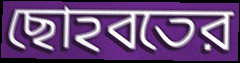
ছোহবতের